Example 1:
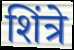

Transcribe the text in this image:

शिंत्रे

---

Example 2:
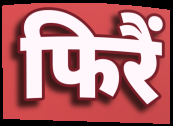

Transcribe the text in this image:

फिरैं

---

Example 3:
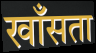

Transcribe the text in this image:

खाँसता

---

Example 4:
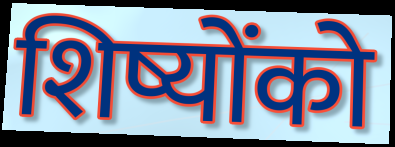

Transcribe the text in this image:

शिष्योंको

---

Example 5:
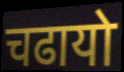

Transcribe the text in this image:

चढायो